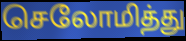
செலோமித்து